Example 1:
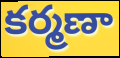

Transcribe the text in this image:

కర్మణా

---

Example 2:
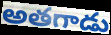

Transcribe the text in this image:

అతగాడు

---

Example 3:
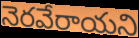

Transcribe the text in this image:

నెరవేరాయని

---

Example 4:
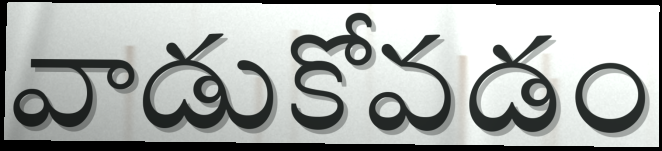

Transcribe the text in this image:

వాడుకోవడం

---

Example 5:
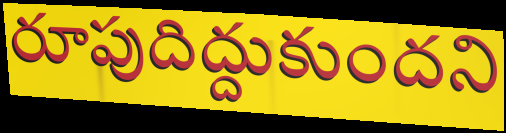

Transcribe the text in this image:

రూపుదిద్దుకుందని